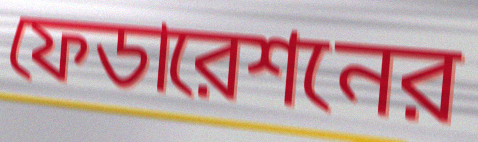
ফেডারেশনের